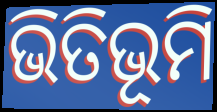
ଭିତିଭୂମି